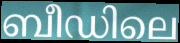
ബീഡിലെ